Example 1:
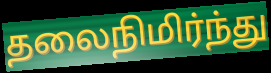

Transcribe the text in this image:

தலைநிமிர்ந்து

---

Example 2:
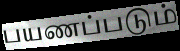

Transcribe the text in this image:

பயணப்படும்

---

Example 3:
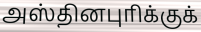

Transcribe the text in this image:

அஸ்தினபுரிக்குக்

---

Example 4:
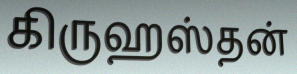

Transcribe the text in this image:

கிருஹஸ்தன்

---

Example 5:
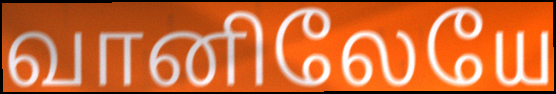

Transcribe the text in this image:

வானிலேயே